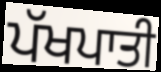
ਪੱਖਪਾਤੀ